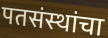
पतसंस्थांचा